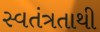
સ્વતંત્રતાથી